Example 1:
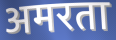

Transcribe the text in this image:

अमरता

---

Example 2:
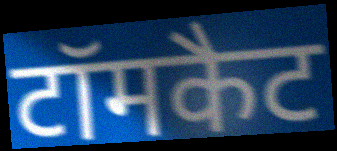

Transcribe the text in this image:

टॉमकैट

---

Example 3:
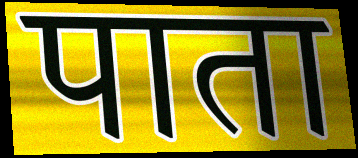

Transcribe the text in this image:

पाता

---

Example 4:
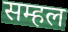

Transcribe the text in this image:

सम्हल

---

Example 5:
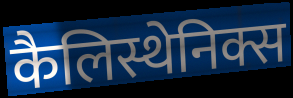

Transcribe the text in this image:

कैलिस्थेनिक्स